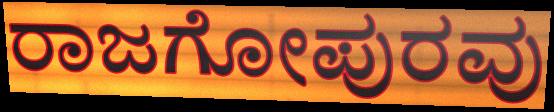
ರಾಜಗೋಪುರವು